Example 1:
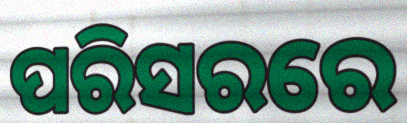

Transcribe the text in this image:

ପରିସରରେ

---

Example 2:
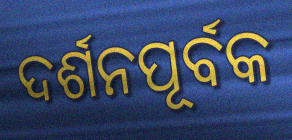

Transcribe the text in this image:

ଦର୍ଶନପୂର୍ବକ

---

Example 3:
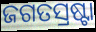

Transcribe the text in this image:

ଜଗତସ୍ରଷ୍ଟା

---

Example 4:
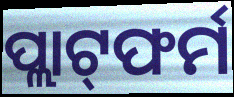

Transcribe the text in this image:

ପ୍ଲାଟ୍‌ଫର୍ମ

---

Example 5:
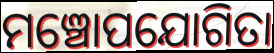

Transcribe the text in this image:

ମଞ୍ଚୋପଯୋଗିତା